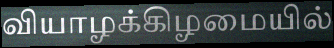
வியாழக்கிழமையில்